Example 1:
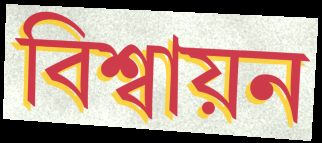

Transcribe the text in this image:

বিশ্বায়ন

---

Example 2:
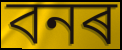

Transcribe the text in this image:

বনৰ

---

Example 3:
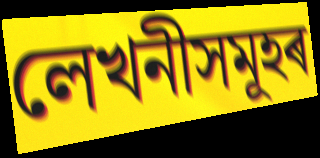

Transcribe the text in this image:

লেখনীসমূহৰ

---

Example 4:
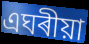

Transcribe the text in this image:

এঘৰীয়া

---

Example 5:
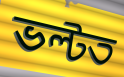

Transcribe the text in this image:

ভল্টত